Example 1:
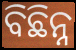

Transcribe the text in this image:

ବିଛିନ୍ନ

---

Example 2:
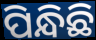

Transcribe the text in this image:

ପିନ୍ଧିଛି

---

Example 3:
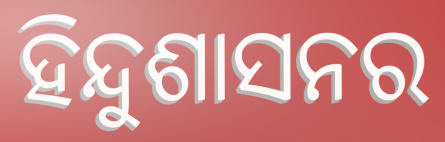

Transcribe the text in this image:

ହିନ୍ଦୁଶାସନର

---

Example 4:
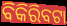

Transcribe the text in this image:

ବିକିରିବଟା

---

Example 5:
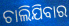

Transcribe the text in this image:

ଚାଲିଯିବାର